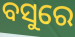
ବସୁରେ